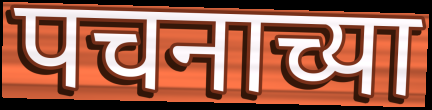
पचनाच्या